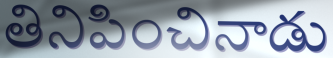
తినిపించినాడు